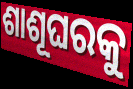
ଶାଶୂଘରକୁ